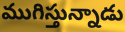
ముగిస్తున్నాడు